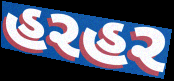
હરહર